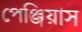
পেঞ্জিয়াস